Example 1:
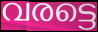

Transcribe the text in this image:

വരട്ടെ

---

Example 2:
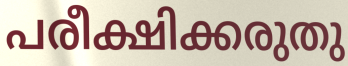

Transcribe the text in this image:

പരീക്ഷിക്കരുതു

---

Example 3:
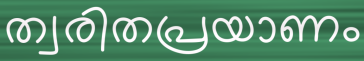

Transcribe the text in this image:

ത്വരിതപ്രയാണം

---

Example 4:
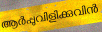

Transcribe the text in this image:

ആർപ്പുവിളിക്കുവിൻ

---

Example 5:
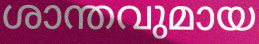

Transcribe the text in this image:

ശാന്തവുമായ